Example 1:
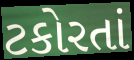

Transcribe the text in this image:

ટકોરતાં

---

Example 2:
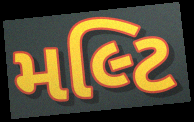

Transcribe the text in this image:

મલ્ટિ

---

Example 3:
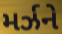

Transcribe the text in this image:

મર્ઝને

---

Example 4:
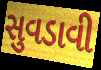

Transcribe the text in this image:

સુવડાવી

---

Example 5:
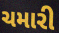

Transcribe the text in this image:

ચમારી